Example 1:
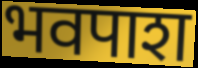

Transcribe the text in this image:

भवपाश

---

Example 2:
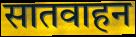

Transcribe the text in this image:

सातवाहन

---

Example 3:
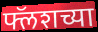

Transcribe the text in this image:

फ्लॅशच्या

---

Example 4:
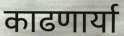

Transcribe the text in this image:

काढणार्या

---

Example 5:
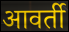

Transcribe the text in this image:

आवर्ती